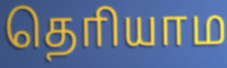
தெரியாம